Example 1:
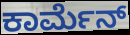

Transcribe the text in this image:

ಕಾರ್ಮೆನ್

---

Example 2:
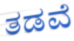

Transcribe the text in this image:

ತಡವೆ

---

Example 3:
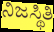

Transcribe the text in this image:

ನಿಜಸ್ಥಿತಿ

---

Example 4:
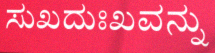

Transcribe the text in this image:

ಸುಖದುಃಖವನ್ನು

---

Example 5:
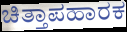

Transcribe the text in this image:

ಚಿತ್ತಾಪಹಾರಕ